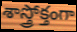
శాస్త్రోక్తంగా